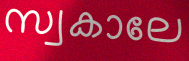
സ്വകാലേ